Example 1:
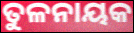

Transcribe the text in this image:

ତୁଳନାୟକ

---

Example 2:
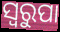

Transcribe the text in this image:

ସ୍ୱରୁପା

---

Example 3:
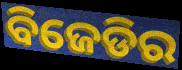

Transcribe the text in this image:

ବିଜେଡିର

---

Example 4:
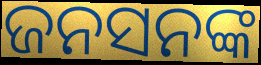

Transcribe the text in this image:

ଜନସନଙ୍କ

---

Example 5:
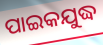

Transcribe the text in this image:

ପାଇକଯୁଦ୍ଧ